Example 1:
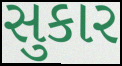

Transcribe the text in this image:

સુકાર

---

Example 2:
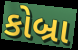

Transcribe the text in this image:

કોબ્રા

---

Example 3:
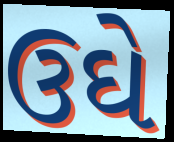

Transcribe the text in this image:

ઉઘે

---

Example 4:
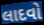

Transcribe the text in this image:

લાદવો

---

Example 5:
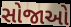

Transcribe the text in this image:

સોજાઓ